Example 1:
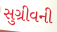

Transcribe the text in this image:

સુગ્રીવની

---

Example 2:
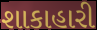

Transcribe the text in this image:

શાકાહારી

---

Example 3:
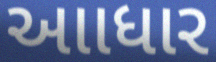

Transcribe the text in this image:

આાધાર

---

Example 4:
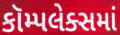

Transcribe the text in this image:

કૉમ્પલેક્સમાં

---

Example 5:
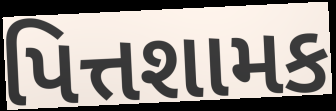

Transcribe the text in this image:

પિત્તશામક